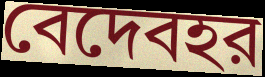
বেদেবহর